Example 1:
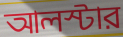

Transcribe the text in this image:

আলস্টার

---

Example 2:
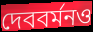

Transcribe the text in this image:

দেববর্মনও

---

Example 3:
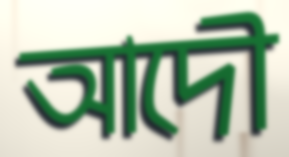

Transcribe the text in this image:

আদৌ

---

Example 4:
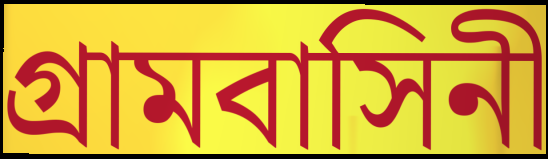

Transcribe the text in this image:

গ্রামবাসিনী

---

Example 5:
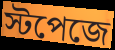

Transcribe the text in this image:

স্টপেজে